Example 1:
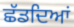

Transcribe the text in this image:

ਛੱਡਦਿਆਂ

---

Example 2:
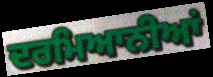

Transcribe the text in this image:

ਦਰਮਿਆਨੀਆਂ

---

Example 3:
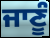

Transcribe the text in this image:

ਜਾਣੂੰ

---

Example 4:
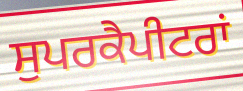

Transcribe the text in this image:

ਸੁਪਰਕੈਪੀਟਰਾਂ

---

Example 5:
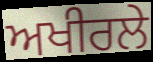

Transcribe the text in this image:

ਅਖੀਰਲੇ